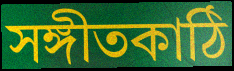
সঙ্গীতকাঠি